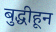
बुद्धीहून